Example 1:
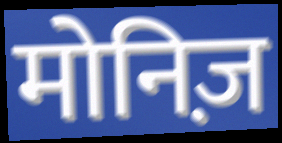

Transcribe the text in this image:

मोनिज़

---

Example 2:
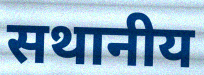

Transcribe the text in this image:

सथानीय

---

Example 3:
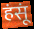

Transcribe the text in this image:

हंसूं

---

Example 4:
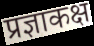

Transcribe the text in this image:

प्रज्ञाकक्ष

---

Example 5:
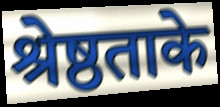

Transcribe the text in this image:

श्रेष्ठताके